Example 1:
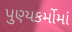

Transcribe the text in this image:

પુણ્યકર્મોમાં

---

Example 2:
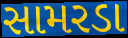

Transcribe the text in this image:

સામરડા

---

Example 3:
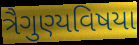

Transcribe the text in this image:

ત્રૈગુણ્યવિષયા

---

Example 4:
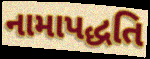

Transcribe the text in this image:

નામાપદ્ધતિ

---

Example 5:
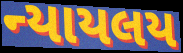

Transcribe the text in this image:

ન્યાયલય